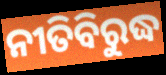
ନୀତିବିରୁଦ୍ଧ